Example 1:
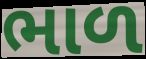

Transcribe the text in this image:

ભાળ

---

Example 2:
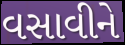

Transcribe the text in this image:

વસાવીને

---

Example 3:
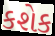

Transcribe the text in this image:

કશેક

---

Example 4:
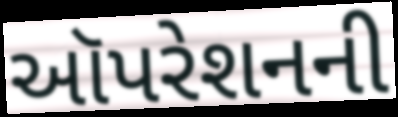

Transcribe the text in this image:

ઑપરેશનની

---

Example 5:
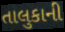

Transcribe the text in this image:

તાલુકાની